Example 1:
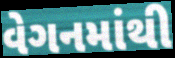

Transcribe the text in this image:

વેગનમાંથી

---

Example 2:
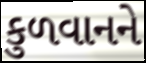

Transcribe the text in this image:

કુળવાનને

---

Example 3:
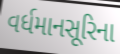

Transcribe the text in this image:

વર્ધમાનસૂરિના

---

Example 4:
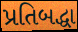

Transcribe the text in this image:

પ્રતિબદ્ધા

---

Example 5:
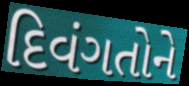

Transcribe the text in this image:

દિવંગતોને